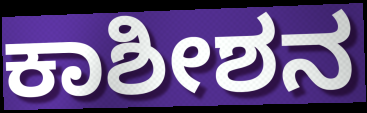
ಕಾಶೀಶನ